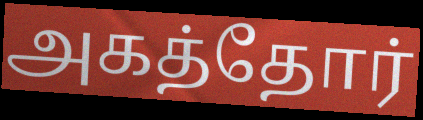
அகத்தோர்